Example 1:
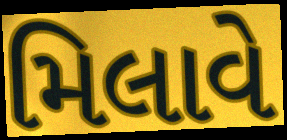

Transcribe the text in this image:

મિલાવે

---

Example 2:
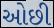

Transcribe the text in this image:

ઓછી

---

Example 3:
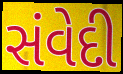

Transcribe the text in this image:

સંવેદી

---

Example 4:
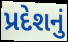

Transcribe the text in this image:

પ્રદેશનું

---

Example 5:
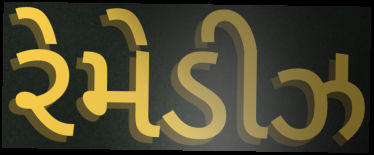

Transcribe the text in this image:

રેમેડીઝ